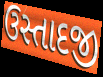
ઉસ્તાદજી